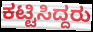
ಕಟ್ಟಿಸಿದ್ದರು